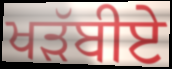
ਖੜੱਬੀਏ